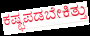
ಕಷ್ಟಪಡಬೇಕಿತ್ತು